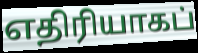
எதிரியாகப்